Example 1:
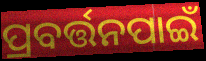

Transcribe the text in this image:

ପ୍ରବର୍ତ୍ତନପାଇଁ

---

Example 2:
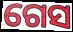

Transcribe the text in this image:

ଗେସ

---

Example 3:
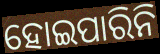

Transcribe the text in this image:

ହୋଇପାରିନି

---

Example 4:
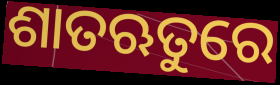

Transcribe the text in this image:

ଶାତଋତୁରେ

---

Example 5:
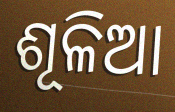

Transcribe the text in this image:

ଶୂଳିଆ